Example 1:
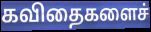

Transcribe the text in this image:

கவிதைகளைச்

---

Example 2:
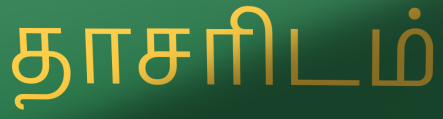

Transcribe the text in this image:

தாசரிடம்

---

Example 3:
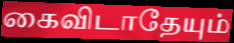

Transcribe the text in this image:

கைவிடாதேயும்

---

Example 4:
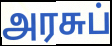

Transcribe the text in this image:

அரசுப்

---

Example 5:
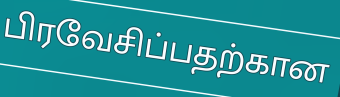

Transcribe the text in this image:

பிரவேசிப்பதற்கான